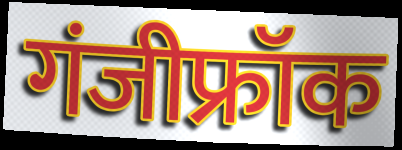
गंजीफ्रॉक